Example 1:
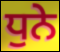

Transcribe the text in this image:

ਧੁਨੇ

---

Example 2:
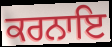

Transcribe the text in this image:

ਕਰਨਾਇ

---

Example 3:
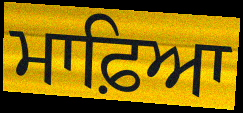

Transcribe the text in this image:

ਮਾਫ਼ਿਆ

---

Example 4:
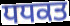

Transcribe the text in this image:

ਧਧਕਤ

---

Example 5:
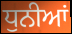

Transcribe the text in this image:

ਧੁਨੀਆਂ